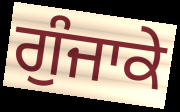
ਗੁੰਜਾਕੇ